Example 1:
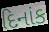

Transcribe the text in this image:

દિનાંક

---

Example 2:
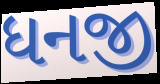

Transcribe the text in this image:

ધનજી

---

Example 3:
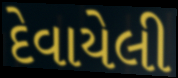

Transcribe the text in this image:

દેવાયેલી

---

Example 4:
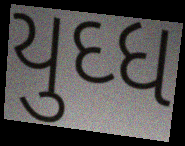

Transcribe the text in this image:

યુઘ્ધ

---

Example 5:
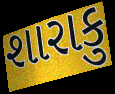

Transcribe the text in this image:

શારાકુ